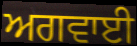
ਅਗਵਾਈ